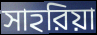
সাহরিয়া